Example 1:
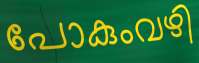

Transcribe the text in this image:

പോകുംവഴി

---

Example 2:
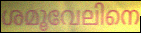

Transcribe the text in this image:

ശമൂവേലിനെ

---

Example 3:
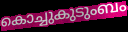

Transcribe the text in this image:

കൊച്ചുകുടുംബം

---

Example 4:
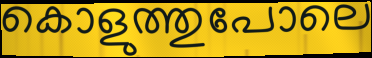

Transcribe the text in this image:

കൊളുത്തുപോലെ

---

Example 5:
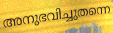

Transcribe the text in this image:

അനുഭവിച്ചുതന്നെ